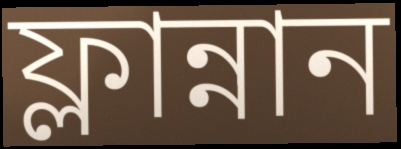
ফ্লান্নান